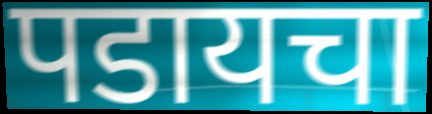
पडायचा